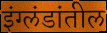
इंग्लंडांतील